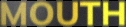
MOUTH